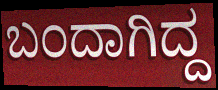
ಬಂದಾಗಿದ್ದ